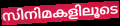
സിനിമകളിലൂടെ